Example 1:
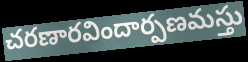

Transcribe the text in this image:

చరణారవిందార్పణమస్తు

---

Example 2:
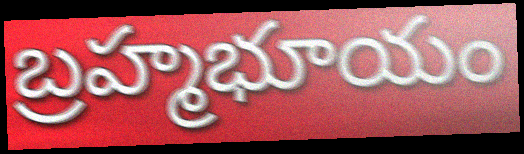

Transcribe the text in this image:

బ్రహ్మభూయం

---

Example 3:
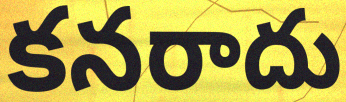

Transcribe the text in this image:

కనరాదు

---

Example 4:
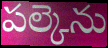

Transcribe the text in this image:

పల్కెను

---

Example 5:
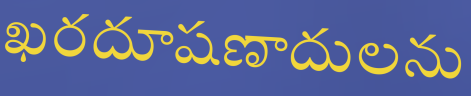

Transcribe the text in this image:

ఖరదూషణాదులను